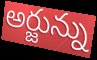
అర్జున్ను